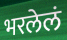
भरलेलं